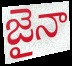
జైనా